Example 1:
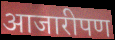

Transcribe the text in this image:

आजारीपण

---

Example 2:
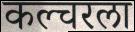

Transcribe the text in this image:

कल्चरला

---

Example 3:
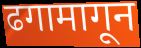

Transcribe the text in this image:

ढगामागून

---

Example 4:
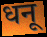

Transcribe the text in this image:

धनू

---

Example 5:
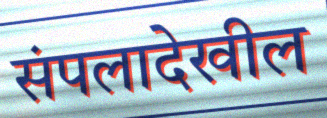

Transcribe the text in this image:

संपलादेखील